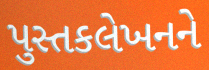
પુસ્તકલેખનને